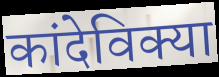
कांदेविक्या